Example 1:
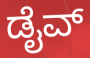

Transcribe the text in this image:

ಡೈವ್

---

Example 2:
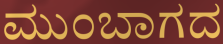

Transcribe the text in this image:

ಮುಂಬಾಗದ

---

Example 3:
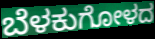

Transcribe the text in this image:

ಬೆಳಕುಗೋಳದ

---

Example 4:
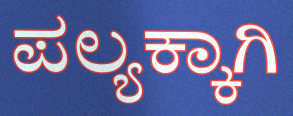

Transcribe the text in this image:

ಪಲ್ಯಕ್ಕಾಗಿ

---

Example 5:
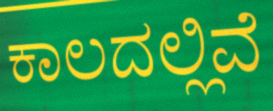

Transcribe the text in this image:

ಕಾಲದಲ್ಲಿವೆ